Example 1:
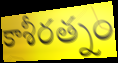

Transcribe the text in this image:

కాశీరత్నం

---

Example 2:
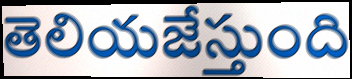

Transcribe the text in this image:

తెలియజేస్తుంది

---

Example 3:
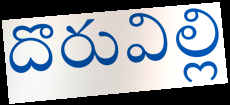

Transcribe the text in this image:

దొరువిల్లి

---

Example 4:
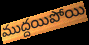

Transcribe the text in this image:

ముద్దయిపోయి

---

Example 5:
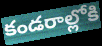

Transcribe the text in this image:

కండరాల్లోకి